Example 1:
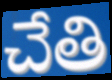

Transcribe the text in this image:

చేతి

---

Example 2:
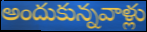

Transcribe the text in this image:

అందుకున్నవాళ్లు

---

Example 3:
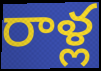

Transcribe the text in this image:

రాళ్ల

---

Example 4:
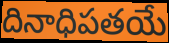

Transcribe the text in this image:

దినాధిపతయే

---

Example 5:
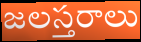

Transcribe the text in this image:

జలస్తరాలు